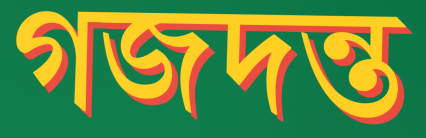
গজদন্ত